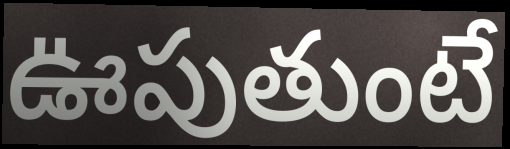
ఊపుతుంటే